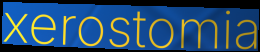
xerostomia